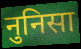
नुनिसा